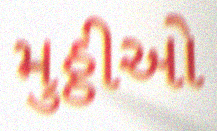
મુઠ્ઠીઓ